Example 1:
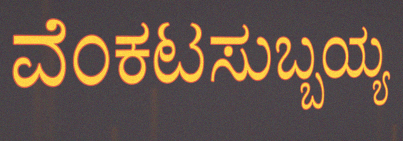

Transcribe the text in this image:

ವೆಂಕಟಸುಬ್ಬಯ್ಯ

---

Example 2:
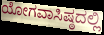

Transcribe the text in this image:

ಯೋಗವಾಸಿಷ್ಠದಲ್ಲಿ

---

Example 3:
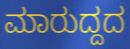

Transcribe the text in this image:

ಮಾರುದ್ದದ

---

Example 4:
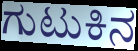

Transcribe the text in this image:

ಗುಟುಕಿನ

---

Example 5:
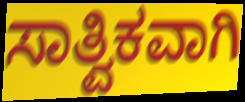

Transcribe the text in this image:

ಸಾತ್ವಿಕವಾಗಿ